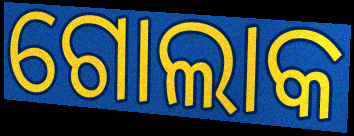
ଗୋଲାକ